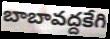
బాబావద్దకేగి